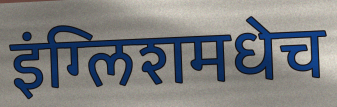
इंग्लिशमधेच